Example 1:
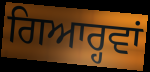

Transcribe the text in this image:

ਗਿਆਰ੍ਹਵਾਂ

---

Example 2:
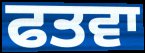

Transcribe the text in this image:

ਫਤਵਾ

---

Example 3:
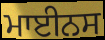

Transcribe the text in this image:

ਮਾਈਨਸ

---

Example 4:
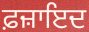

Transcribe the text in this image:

ਫ਼ਜ਼ਾਇਦ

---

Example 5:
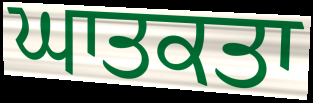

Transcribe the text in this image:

ਘਾਤਕਤਾ